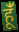
हूँं